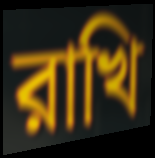
রাখি